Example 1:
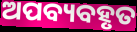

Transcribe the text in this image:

ଅପବ୍ୟବହୃତ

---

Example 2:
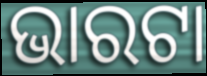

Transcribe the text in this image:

ଭାରଟା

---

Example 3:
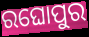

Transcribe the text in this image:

ରଘୋପୁର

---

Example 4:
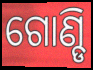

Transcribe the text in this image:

ଗୋଣ୍ଡି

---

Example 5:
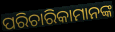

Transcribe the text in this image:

ପରିଚାରିକାମାନଙ୍କ